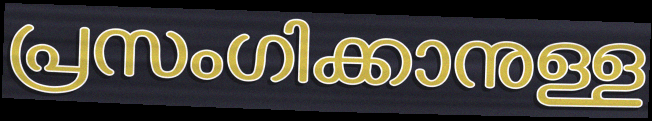
പ്രസംഗിക്കാനുള്ള